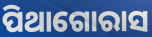
ପିଥାଗୋରାସ